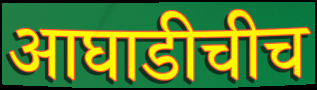
आघाडीचीच